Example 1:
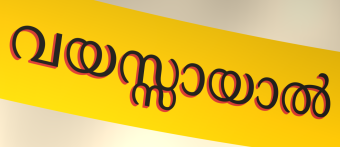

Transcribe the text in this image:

വയസ്സായാൽ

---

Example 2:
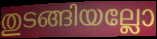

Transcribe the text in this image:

തുടങ്ങിയല്ലോ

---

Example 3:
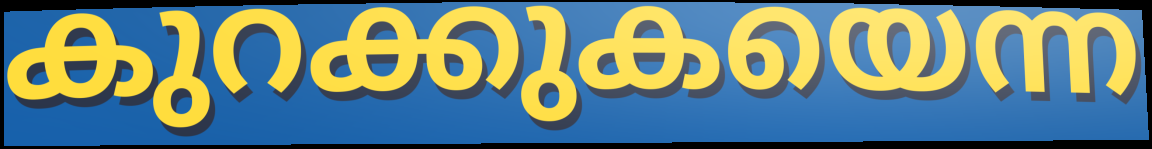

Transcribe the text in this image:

കുറക്കുകയെന്ന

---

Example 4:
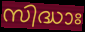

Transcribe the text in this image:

സിദ്ധാഃ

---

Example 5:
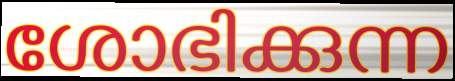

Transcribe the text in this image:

ശോഭിക്കുന്ന